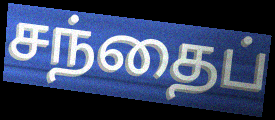
சந்தைப்